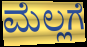
ಮೆಲ್ಲಗೆ